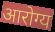
आरोग्य